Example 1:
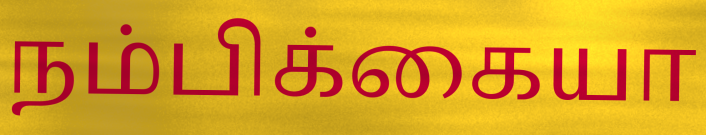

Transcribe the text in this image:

நம்பிக்கையா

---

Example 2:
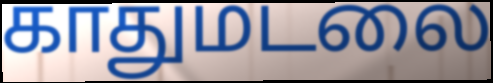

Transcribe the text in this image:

காதுமடலை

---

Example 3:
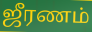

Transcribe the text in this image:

ஜீரணம்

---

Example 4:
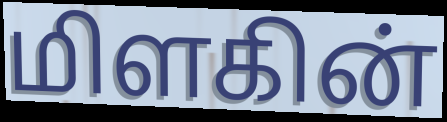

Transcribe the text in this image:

மிளகின்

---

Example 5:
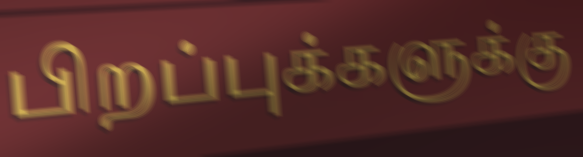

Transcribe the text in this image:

பிறப்புக்களுக்கு